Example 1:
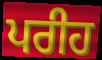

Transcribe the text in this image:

ਪਰੀਹ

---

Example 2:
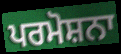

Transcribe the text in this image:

ਪਰਮੋਸ਼ਨਾ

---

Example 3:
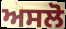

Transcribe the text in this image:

ਅਸਲੋ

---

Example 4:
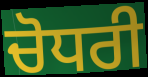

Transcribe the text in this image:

ਚੋਧਰੀ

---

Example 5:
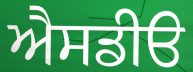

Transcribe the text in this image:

ਐਸਡੀੳ